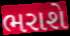
ભરાશે